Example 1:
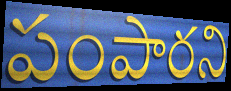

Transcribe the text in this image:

పంపారని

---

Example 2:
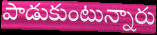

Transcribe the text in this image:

పాడుకుంటున్నారు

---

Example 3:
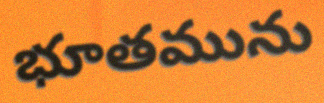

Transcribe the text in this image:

భూతమును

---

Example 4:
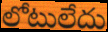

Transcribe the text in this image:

లోటులేదు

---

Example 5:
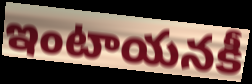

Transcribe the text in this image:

ఇంటాయనకీ